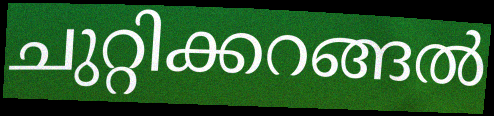
ചുറ്റിക്കറങ്ങൽ